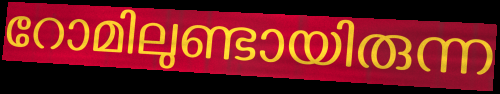
റോമിലുണ്ടായിരുന്ന